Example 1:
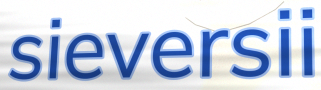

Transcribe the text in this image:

sieversii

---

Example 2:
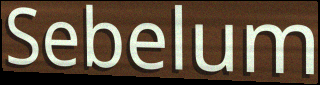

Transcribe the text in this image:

Sebelum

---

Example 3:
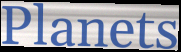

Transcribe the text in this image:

Planets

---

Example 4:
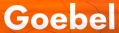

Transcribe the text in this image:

Goebel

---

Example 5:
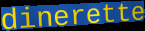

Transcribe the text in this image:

dinerette